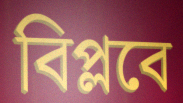
বিপ্লবে